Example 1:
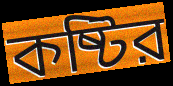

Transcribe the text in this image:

কষ্টির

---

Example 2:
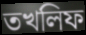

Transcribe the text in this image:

তখলিফ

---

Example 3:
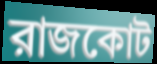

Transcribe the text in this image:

রাজকোট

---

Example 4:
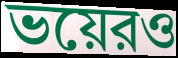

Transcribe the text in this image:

ভয়েরও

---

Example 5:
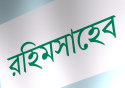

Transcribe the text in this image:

রহিমসাহেব